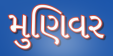
મુણિવર